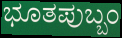
ಭೂತಪುಬ್ಬಂ